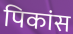
पिकांस